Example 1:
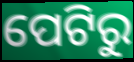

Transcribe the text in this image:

ପେଟିରୁ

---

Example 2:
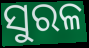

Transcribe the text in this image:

ସୁରଳ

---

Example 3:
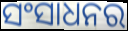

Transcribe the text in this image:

ସଂସାଧନର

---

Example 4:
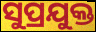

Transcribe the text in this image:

ସୁପ୍ରଯୁକ୍ତ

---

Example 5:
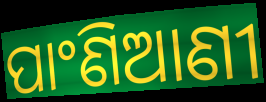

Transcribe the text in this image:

ପାଂଣିଆଣୀ